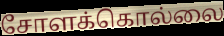
சோளக்கொல்லை